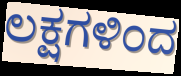
ಲಕ್ಷಗಳಿಂದ